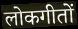
लोकगीतों